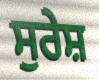
ਸੁਰੇਸ਼